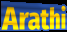
Arathi